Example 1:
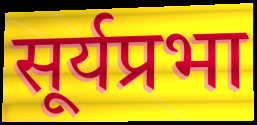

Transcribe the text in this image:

सूर्यप्रभा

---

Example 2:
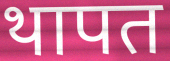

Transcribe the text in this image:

थापत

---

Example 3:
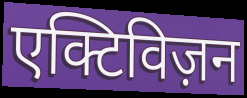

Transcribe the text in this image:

एक्टिविज़न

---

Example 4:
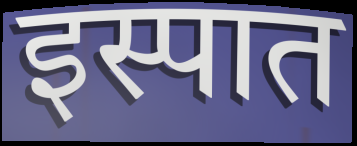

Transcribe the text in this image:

इस्पात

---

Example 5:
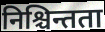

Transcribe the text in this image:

निश्चिन्तता